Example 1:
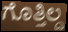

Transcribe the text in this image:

ಗೊತ್ತಿಲ್ದ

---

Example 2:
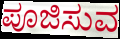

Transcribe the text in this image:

ಪೂಜಿಸುವ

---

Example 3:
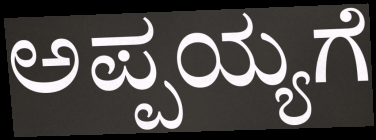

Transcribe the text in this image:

ಅಪ್ಪಯ್ಯಗೆ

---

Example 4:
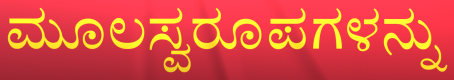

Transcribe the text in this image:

ಮೂಲಸ್ವರೂಪಗಳನ್ನು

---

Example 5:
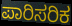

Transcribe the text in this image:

ಪಾರಿಸರಿಕ